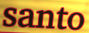
santo